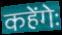
कहेंगेः